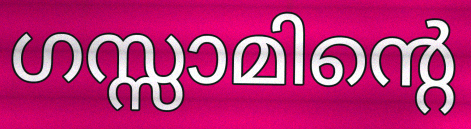
ഗസ്സാമിന്റെ